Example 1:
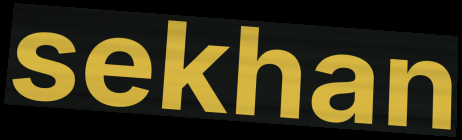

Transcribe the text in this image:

sekhan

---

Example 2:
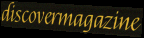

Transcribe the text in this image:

discovermagazine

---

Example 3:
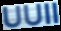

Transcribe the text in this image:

UUII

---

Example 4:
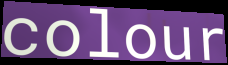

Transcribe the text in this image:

colour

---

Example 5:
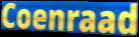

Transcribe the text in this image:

Coenraad